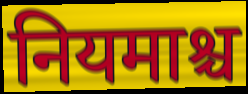
नियमाश्च